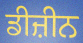
ਡੀਜ਼ੀਨ